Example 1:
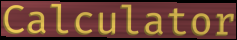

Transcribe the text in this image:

Calculator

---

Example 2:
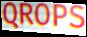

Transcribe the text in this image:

QROPS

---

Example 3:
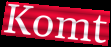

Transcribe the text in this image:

Komt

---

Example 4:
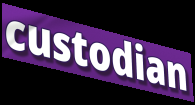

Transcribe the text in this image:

custodian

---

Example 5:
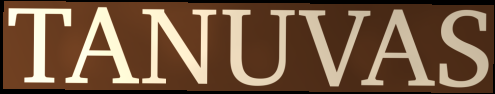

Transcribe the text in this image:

TANUVAS